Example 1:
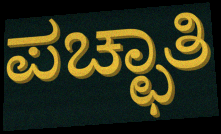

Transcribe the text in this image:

ಪಚ್ಛಾತಿ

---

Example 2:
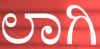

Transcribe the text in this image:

ಲಾಗಿ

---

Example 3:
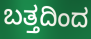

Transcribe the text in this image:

ಬತ್ತದಿಂದ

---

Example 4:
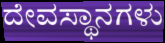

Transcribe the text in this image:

ದೇವಸ್ಥಾನಗಳು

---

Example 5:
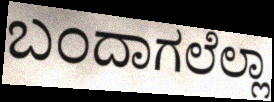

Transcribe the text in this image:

ಬಂದಾಗಲೆಲ್ಲಾ